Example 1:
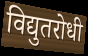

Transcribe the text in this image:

विद्युतरोधी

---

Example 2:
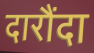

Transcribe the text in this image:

दारौंदा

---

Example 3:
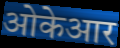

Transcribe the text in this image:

ओकेआर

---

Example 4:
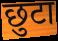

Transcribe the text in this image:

छुटा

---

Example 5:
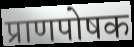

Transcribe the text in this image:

प्राणपोषक